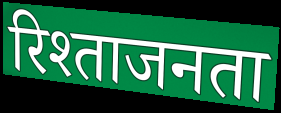
रिश्ताजनता